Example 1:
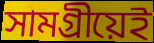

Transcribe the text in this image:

সামগ্ৰীয়েই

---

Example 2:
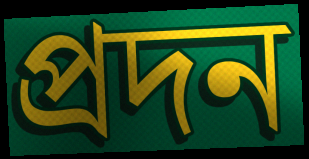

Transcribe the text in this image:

প্ৰদন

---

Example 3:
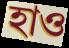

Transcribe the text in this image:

হাও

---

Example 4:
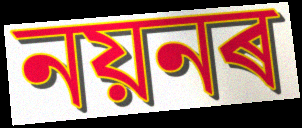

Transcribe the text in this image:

নয়নৰ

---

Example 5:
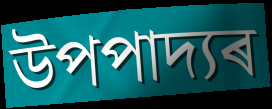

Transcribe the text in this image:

উপপাদ্যৰ